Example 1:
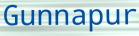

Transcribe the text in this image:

Gunnapur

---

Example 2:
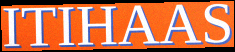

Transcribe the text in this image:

ITIHAAS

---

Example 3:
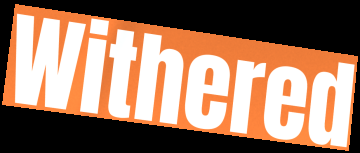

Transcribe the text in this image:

Withered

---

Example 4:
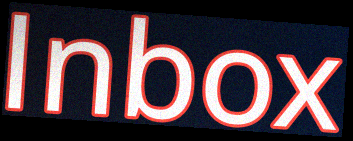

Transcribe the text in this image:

Inbox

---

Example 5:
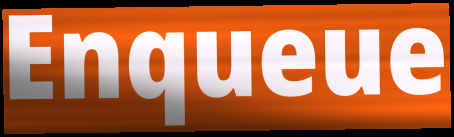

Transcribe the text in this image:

Enqueue